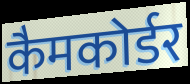
कैमकोर्डर